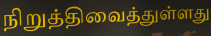
நிறுத்திவைத்துள்ளது